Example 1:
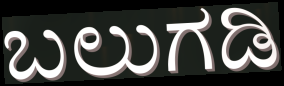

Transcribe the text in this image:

ಬಲುಗಡಿ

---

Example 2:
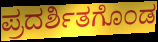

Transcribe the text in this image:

ಪ್ರದರ್ಶಿತಗೊಂಡ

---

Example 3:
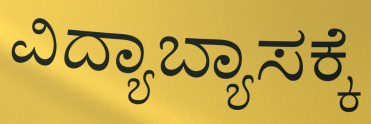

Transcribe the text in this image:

ವಿದ್ಯಾಬ್ಯಾಸಕ್ಕೆ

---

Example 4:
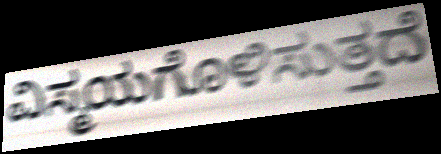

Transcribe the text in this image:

ವಿಸ್ಮಯಗೊಳಿಸುತ್ತದೆ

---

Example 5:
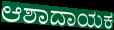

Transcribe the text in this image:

ಆಶಾದಾಯಕ